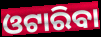
ଓଟାରିବା